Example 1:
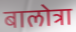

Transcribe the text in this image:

बालोत्रा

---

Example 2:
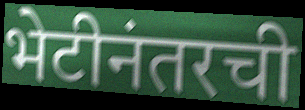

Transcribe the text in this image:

भेटीनंतरची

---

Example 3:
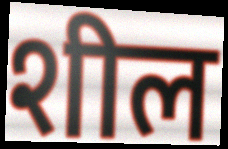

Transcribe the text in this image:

शील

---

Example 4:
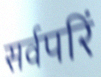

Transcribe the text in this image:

सर्वपरिं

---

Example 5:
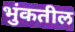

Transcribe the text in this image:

भुंकतील